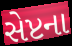
સેપ્ટના